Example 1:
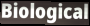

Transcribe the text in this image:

Biological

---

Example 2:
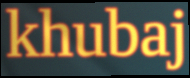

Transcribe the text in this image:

khubaj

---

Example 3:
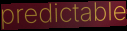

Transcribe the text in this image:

predictable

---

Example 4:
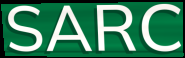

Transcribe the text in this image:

SARC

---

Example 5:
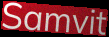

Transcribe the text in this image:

Samvit